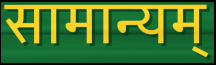
सामान्यम्